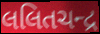
લલિતચન્દ્ર